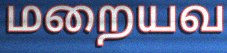
மறையவ